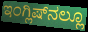
ಇಂಗ್ಲಿಷ್‌ನಲ್ಲೂ